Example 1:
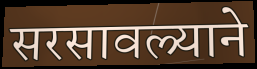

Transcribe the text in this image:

सरसावल्याने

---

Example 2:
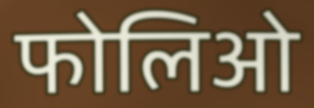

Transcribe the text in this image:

फोलिओ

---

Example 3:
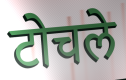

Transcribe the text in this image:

टोचले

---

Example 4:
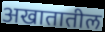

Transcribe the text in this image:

अखातातील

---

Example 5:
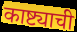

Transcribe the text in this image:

काष्ट्याची